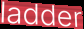
ladder